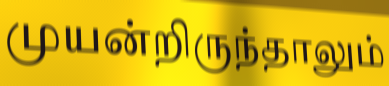
முயன்றிருந்தாலும்